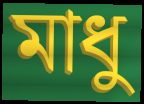
মাধু